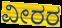
ವೀರರ